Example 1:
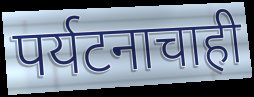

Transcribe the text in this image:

पर्यटनाचाही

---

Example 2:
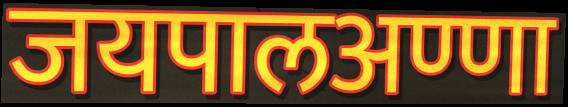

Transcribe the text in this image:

जयपालअण्णा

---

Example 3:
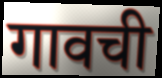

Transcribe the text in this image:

गावची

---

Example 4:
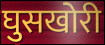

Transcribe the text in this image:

घुसखोरी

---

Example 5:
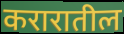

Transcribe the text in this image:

करारातील